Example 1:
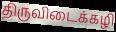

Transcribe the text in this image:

திருவிடைக்கழி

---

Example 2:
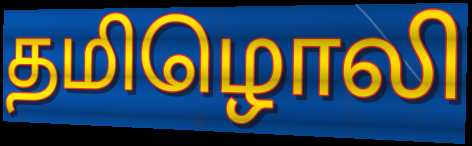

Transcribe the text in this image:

தமிழொலி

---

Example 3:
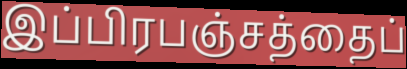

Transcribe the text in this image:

இப்பிரபஞ்சத்தைப்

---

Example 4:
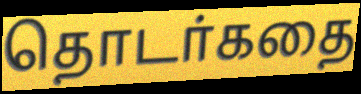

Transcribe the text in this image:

தொடர்கதை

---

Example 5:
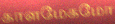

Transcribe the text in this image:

காளமேகமோ